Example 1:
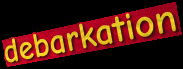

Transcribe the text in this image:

debarkation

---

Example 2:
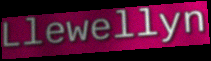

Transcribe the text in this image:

Llewellyn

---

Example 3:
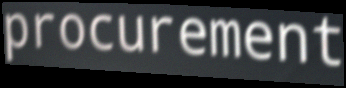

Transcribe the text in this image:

procurement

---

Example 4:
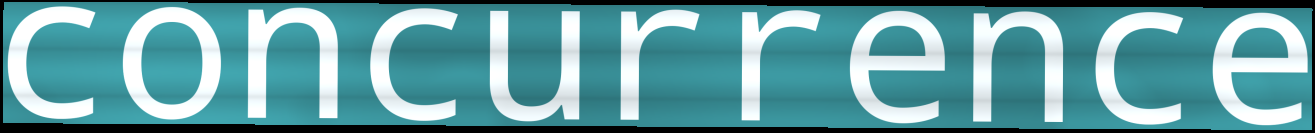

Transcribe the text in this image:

concurrence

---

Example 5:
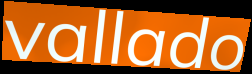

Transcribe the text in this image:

vallado